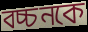
বচ্চনকে